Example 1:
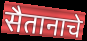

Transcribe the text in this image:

सैतानाचे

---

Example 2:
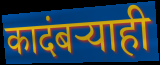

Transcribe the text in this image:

कादंबऱ्याही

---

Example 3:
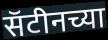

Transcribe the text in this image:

सॅटीनच्या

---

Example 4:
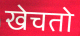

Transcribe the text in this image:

खेचतो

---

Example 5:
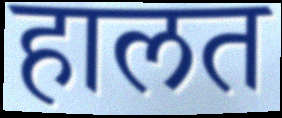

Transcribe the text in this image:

हालत